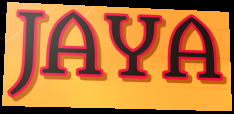
JAYA